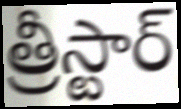
త్రీస్టార్